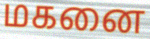
மகனை